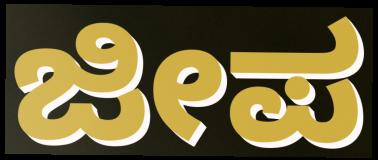
ಜೀಪ